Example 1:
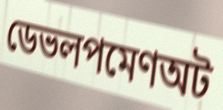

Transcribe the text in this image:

ডেভলপমেণঅট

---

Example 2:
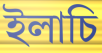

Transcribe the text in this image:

ইলাচি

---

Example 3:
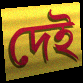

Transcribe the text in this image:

দেই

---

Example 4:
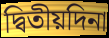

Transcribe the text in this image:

দ্বিতীয়দিনা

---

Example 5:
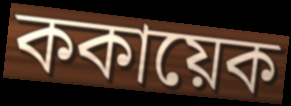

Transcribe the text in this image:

ককায়েক